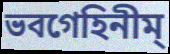
ভবগেহিনীম্